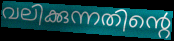
വലിക്കുന്നതിന്റെ